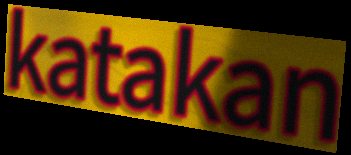
katakan